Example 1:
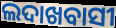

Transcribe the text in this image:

ଲଦାଖବାସୀ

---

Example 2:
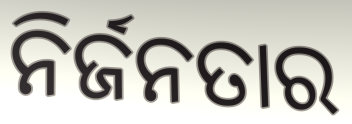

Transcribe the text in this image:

ନିର୍ଜନତାର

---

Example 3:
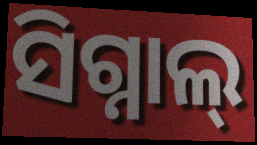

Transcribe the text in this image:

ସିଗ୍ନାଲ୍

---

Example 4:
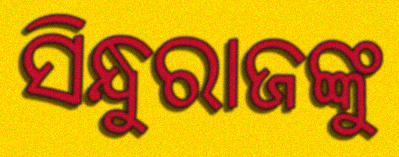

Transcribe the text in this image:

ସିନ୍ଧୁରାଜଙ୍କୁ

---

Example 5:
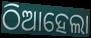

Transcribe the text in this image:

ଠିଆହେଲା